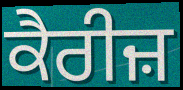
ਕੈਰੀਜ਼